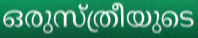
ഒരുസ്ത്രീയുടെ